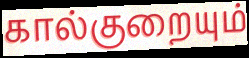
கால்குறையும்